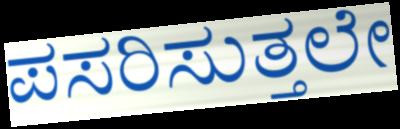
ಪಸರಿಸುತ್ತಲೇ